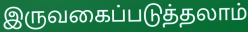
இருவகைப்படுத்தலாம்